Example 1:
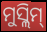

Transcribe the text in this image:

ମୁସ୍ଲିମ୍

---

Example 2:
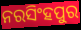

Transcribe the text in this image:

ନରସିଂହପୁର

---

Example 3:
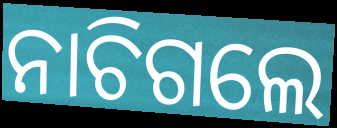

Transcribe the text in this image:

ନାଚିଗଲେ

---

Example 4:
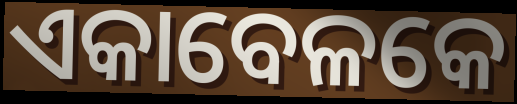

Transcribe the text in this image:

ଏକାବେଳକେ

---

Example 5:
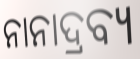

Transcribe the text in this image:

ନାନାଦ୍ରବ୍ୟ